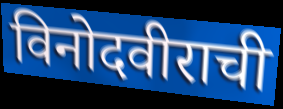
विनोदवीराची